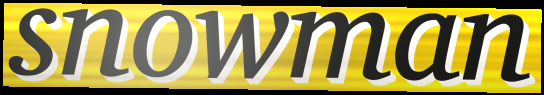
snowman